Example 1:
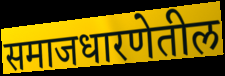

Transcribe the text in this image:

समाजधारणेतील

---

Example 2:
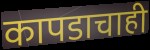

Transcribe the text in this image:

कापडाचाही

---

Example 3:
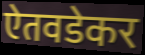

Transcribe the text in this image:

ऐतवडेकर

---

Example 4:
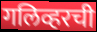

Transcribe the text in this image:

गलिव्हरची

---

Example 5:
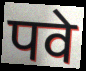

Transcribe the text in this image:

पवे